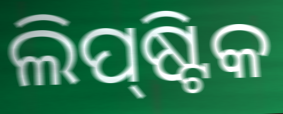
ଲିପ୍‌ଷ୍ଟିକ